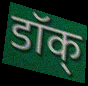
डॉक्